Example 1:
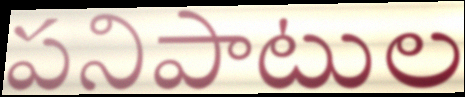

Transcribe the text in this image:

పనిపాటుల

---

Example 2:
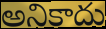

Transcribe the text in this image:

అనికాదు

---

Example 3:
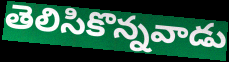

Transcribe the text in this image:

తెలిసికొన్నవాడు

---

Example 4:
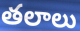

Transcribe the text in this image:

తలాలు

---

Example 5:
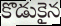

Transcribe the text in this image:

కొడుకైన